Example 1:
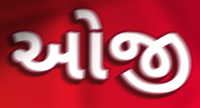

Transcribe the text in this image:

ઓજી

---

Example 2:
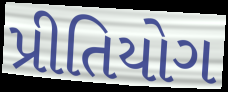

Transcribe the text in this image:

પ્રીતિયોગ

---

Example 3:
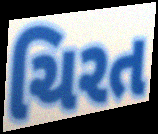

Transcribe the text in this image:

ચિરત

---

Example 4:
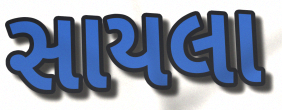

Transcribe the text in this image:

સાયલા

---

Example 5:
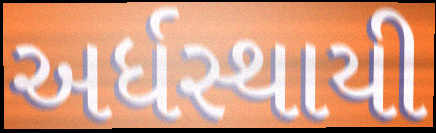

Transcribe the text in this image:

અર્ધસ્થાયી